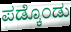
ಪಡ್ಕೊಂಡು